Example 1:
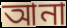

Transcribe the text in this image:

আনা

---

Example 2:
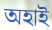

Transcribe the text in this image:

অহাই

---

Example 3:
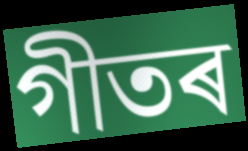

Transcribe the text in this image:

গীতৰ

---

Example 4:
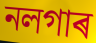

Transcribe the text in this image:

নলগাৰ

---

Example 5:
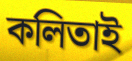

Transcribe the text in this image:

কলিতাই